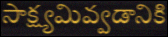
సాక్ష్యమివ్వడానికి